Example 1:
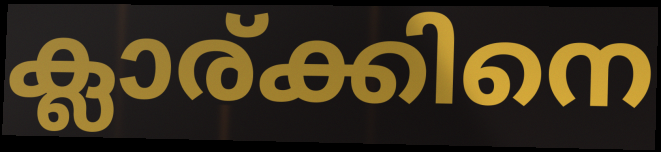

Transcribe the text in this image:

ക്ലാര്ക്കിനെ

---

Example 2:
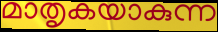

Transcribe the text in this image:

മാതൃകയാകുന്ന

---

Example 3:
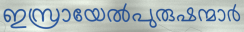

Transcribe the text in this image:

ഇസ്രായേൽപുരുഷന്മാർ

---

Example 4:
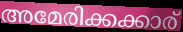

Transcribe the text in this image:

അമേരിക്കക്കാര്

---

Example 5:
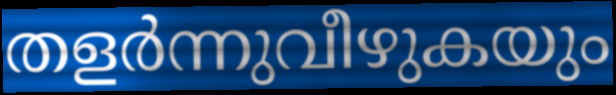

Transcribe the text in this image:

തളർന്നുവീഴുകയും